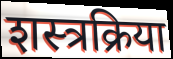
शस्त्रक्रिया